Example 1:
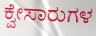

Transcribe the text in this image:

ಕ್ವೇಸಾರುಗಳ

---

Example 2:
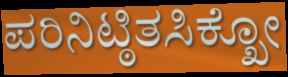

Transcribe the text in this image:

ಪರಿನಿಟ್ಠಿತಸಿಕ್ಖೋ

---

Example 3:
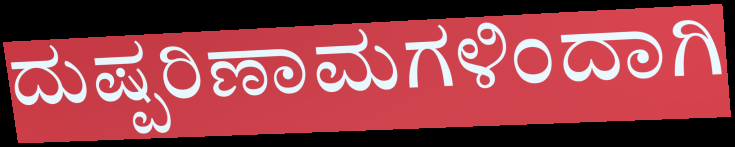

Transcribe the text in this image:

ದುಷ್ಪರಿಣಾಮಗಳಿಂದಾಗಿ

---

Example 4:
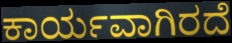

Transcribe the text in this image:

ಕಾರ್ಯವಾಗಿರದೆ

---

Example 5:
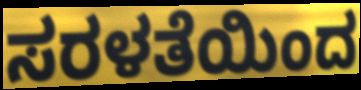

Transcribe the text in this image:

ಸರಳತೆಯಿಂದ